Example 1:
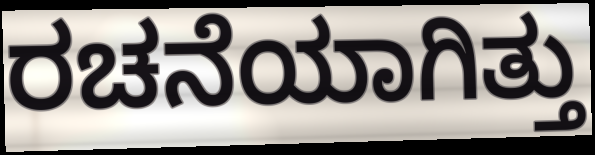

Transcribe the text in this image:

ರಚನೆಯಾಗಿತ್ತು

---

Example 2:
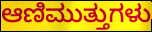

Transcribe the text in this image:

ಆಣಿಮುತ್ತುಗಳು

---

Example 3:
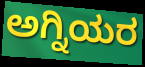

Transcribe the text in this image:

ಅಗ್ನಿಯರ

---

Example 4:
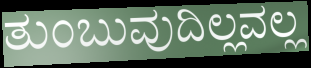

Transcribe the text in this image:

ತುಂಬುವುದಿಲ್ಲವಲ್ಲ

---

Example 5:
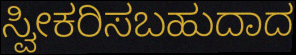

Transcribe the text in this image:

ಸ್ವೀಕರಿಸಬಹುದಾದ